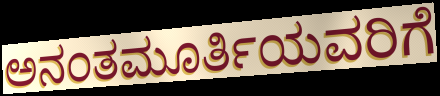
ಅನಂತಮೂರ್ತಿಯವರಿಗೆ